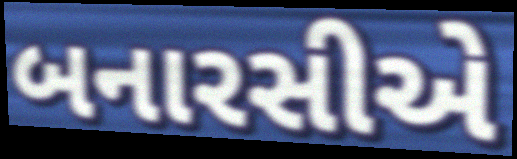
બનારસીએ